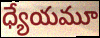
ధ్యేయమూ